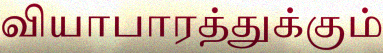
வியாபாரத்துக்கும்